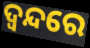
ଦ୍ୱନ୍ଦରେ